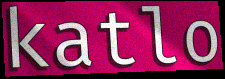
katlo